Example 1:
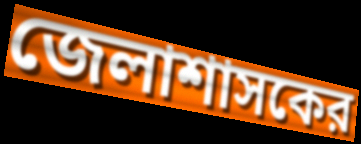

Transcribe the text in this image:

জেলাশাসকের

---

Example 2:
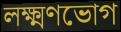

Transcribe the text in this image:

লক্ষ্মণভোগ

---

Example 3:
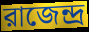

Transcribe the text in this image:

রাজেন্দ্র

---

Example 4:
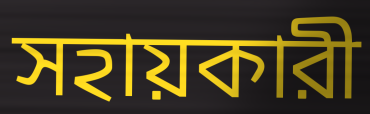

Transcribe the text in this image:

সহায়কারী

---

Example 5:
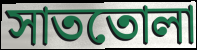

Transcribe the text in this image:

সাততোলা